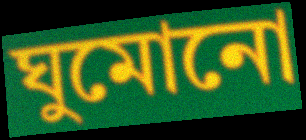
ঘুমোনো